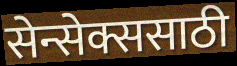
सेन्सेक्ससाठी